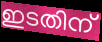
ഇടതിന്